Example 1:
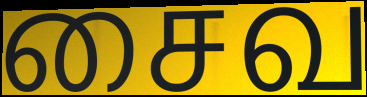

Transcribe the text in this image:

சைவ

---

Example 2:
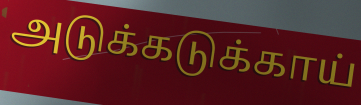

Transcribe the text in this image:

அடுக்கடுக்காய்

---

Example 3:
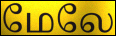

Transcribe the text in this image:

மேலே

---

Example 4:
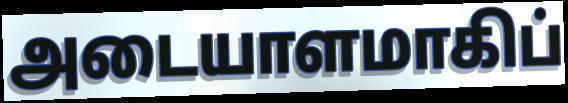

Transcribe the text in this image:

அடையாளமாகிப்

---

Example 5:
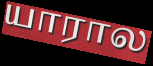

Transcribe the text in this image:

யாரால